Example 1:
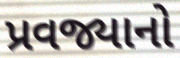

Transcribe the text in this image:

પ્રવજ્યાનો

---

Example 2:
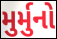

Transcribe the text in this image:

મુર્મુનો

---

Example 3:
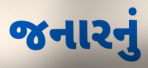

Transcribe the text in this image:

જનારનું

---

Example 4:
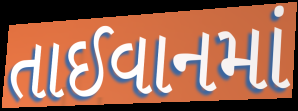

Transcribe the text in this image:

તાઈવાનમાં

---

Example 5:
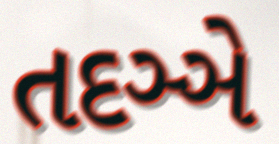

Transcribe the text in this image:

તદઞ્ઞે